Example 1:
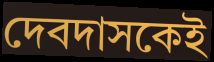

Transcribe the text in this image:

দেবদাসকেই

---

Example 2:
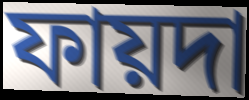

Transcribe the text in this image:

ফায়দা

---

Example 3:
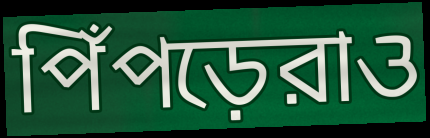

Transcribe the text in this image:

পিঁপড়েরাও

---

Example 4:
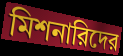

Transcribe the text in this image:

মিশনারিদের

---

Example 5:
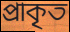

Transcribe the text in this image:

প্রাকৃত